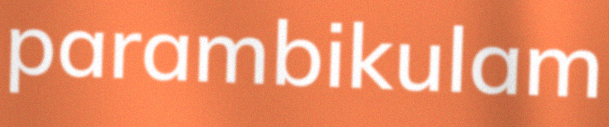
parambikulam